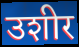
उशीर